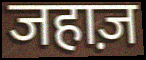
जहाज़